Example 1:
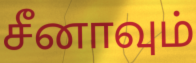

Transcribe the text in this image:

சீனாவும்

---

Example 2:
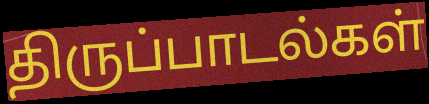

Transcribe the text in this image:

திருப்பாடல்கள்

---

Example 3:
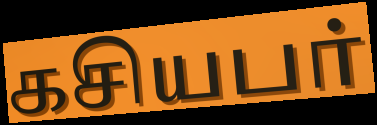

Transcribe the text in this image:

கசியபர்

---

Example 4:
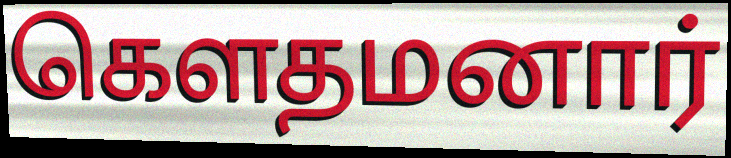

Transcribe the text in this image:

கெளதமனார்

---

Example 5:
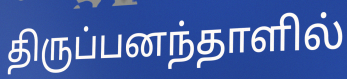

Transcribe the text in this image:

திருப்பனந்தாளில்